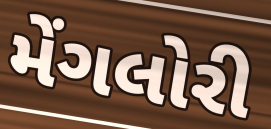
મેંગલોરી